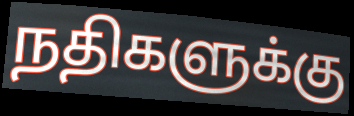
நதிகளுக்கு